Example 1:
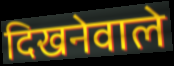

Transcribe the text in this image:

दिखनेवाले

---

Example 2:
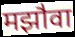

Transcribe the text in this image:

मझौवा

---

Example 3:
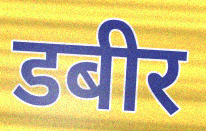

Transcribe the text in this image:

डबीर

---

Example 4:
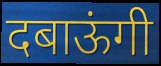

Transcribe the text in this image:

दबाऊंगी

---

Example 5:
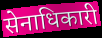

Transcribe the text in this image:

सेनाधिकारी